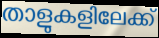
താളുകളിലേക്ക്